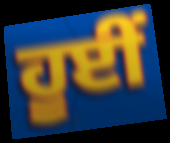
ਹੂਈਂ